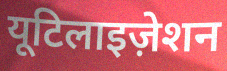
यूटिलाइज़ेशन